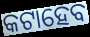
କଟାହେବ